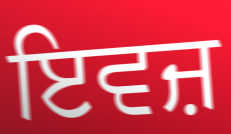
ਇਵਜ਼